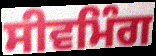
ਸੀਵਮਿੰਗ